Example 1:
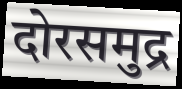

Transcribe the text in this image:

दोरसमुद्र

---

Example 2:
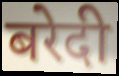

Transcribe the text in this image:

बरेदी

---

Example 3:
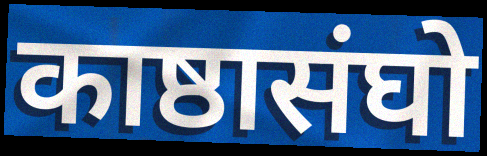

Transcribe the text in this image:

काष्ठासंघो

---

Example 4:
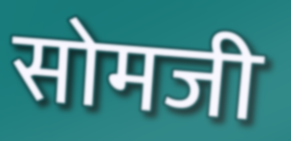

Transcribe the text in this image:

सोमजी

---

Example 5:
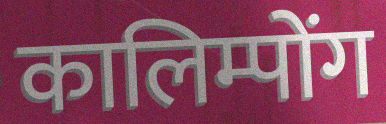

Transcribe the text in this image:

कालिम्पोंग